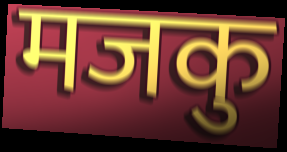
मजकु